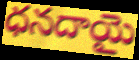
ధనదాయై